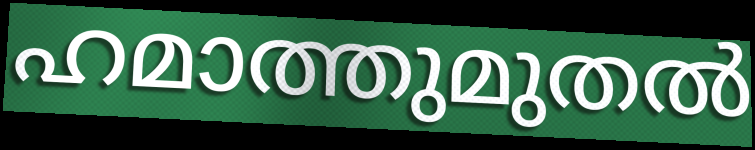
ഹമാത്തുമുതൽ